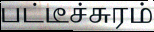
பட்டீச்சுரம்